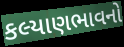
કલ્યાણભાવનો